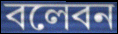
বলেবন